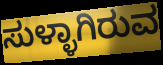
ಸುಳ್ಳಾಗಿರುವ